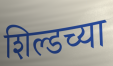
शिल्डच्या